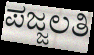
ಪಜ್ಜಲತಿ